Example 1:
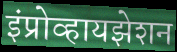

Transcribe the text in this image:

इंप्रोव्हायझेशन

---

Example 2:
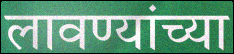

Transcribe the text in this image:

लावण्यांच्या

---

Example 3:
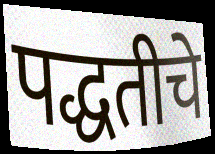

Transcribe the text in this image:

पद्धतीचे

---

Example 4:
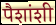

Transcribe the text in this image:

पैशांशी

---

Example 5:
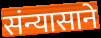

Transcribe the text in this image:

संन्यासाने